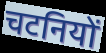
चटनियों